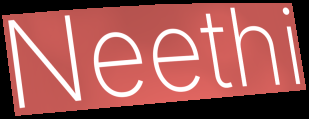
Neethi